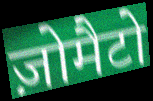
ज़ोमैटो